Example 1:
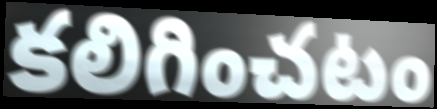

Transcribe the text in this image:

కలిగించటం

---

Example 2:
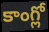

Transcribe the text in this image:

కాంగ్లో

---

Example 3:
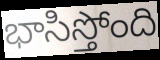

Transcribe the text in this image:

భాసిస్తోంది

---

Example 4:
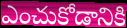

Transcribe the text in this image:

ఎంచుకోడానికి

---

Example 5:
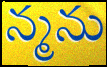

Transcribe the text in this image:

న్మను